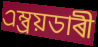
এম্ব্ৰয়ডাৰী